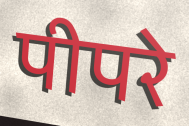
पीपरे